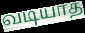
வடியாத